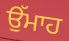
ਉੱਮਾਹ